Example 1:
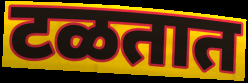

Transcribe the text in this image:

टळतात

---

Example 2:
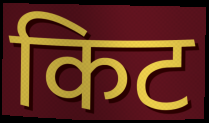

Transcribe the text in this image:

किट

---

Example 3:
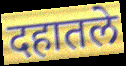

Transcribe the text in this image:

दहातले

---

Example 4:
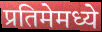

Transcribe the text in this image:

प्रतिमेमध्ये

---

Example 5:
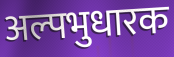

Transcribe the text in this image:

अल्पभुधारक